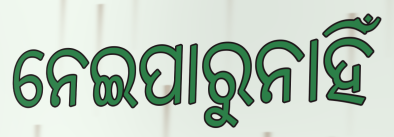
ନେଇପାରୁନାହିଁ